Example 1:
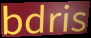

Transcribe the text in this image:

bdris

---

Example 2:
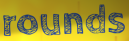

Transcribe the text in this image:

rounds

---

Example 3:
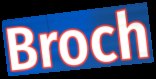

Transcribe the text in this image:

Broch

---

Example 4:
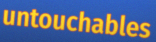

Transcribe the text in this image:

untouchables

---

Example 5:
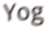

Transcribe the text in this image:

Yog